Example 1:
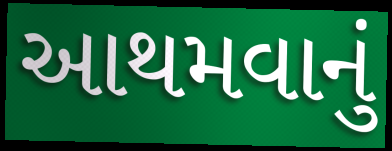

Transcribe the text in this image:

આથમવાનું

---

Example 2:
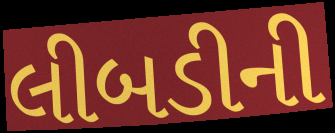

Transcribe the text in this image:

લીબડીની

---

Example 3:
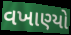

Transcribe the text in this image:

વખાણ્યો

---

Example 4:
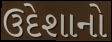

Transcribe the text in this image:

ઉદેશાનો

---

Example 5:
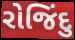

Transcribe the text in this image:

રોજિંદુ